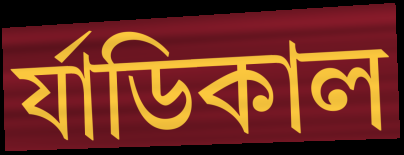
র্যাডিকাল